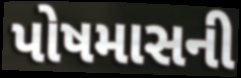
પોષમાસની